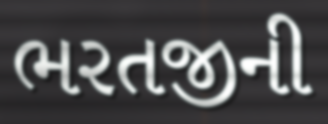
ભરતજીની